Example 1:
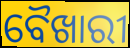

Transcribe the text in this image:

ବୈଖାରୀ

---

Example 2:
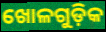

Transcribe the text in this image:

ଖୋଳଗୁଡ଼ିକ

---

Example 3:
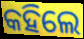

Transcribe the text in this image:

କହିଲେ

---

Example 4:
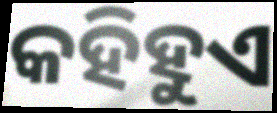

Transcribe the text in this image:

କହିହୁଏ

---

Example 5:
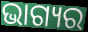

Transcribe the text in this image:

ଭାଗ୍ୟର